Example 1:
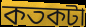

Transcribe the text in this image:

কতকটা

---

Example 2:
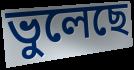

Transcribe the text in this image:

ভুলেছে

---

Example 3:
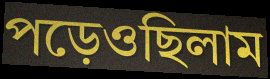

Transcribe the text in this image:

পড়েওছিলাম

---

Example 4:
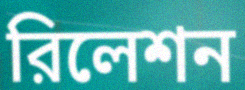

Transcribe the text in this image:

রিলেশন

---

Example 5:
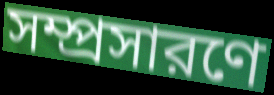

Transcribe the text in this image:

সম্প্রসারণে